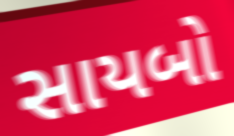
સાયબો